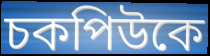
চকপিউকে